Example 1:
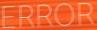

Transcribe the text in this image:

ERROR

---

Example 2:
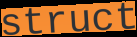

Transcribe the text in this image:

struct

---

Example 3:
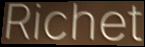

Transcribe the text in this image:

Richet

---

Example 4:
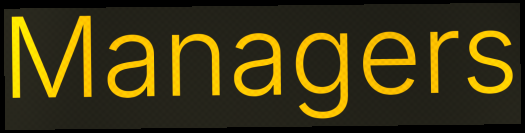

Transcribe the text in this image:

Managers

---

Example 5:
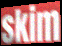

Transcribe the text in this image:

skim